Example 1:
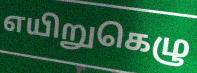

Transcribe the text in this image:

எயிறுகெழு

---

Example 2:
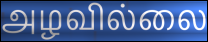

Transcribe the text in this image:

அழவில்லை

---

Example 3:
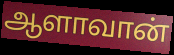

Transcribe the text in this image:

ஆளாவான்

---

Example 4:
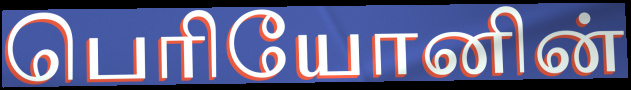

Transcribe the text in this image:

பெரியோனின்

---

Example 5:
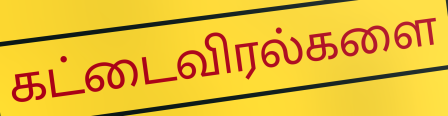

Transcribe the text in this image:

கட்டைவிரல்களை